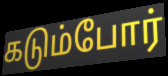
கடும்போர்